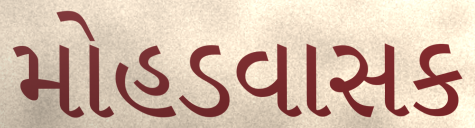
મોહડવાસક